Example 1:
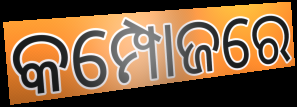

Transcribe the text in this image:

କମ୍ପୋଜରେ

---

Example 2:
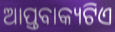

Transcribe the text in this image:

ଆପ୍ତବାକ୍ୟଟିଏ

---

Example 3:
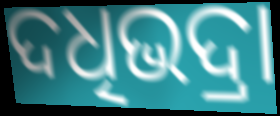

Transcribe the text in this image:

ଦଧିଭଦ୍ରା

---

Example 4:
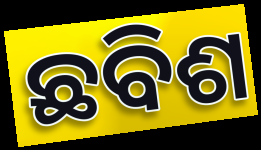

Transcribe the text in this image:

ଛବିଶ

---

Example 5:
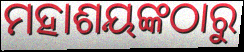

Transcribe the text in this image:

ମହାଶୟଙ୍କଠାରୁ